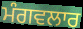
ਮੰਗਵਲਾਰ